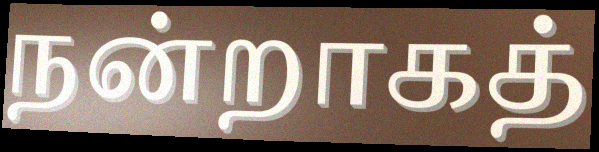
நன்றாகத்